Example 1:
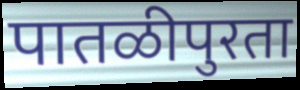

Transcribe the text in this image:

पातळीपुरता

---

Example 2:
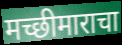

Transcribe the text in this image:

मच्छीमाराचा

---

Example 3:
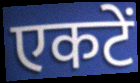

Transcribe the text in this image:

एकटें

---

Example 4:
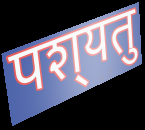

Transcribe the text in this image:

पश्यतु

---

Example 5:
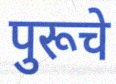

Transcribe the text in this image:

पुरूचे